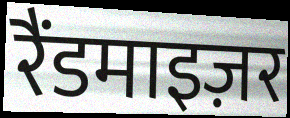
रैंडमाइज़र